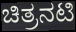
ಚಿತ್ರನಟಿ